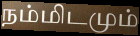
நம்மிடமும்